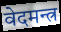
वेदमन्त्र